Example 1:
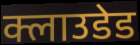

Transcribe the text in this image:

क्लाउडेड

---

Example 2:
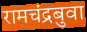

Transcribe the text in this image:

रामचंद्रबुवा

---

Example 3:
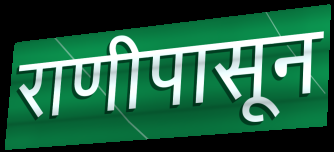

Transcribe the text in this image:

राणीपासून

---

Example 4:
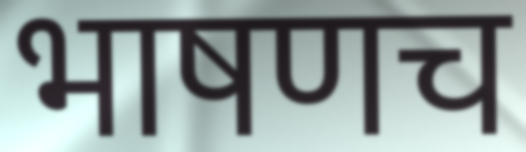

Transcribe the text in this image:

भाषणच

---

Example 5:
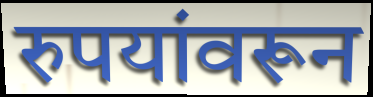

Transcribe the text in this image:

रुपयांवरून